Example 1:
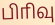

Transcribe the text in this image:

பிரிவு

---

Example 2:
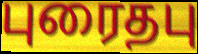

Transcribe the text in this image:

புரைதபு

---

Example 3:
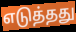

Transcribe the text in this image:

எடுத்தது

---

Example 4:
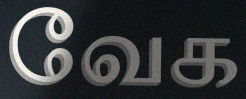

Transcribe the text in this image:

வேக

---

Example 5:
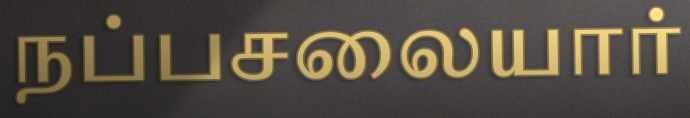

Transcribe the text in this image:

நப்பசலையார்